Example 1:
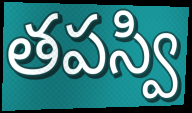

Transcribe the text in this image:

తపస్వి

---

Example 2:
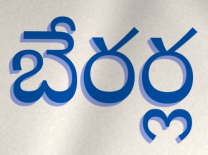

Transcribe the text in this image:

బేరర్ల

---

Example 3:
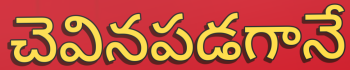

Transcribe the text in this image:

చెవినపడగానే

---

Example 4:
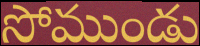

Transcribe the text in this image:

సోముండు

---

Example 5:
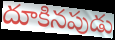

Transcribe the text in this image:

దూకినపుడు